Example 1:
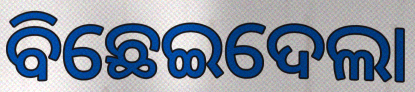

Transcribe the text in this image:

ବିଛେଇଦେଲା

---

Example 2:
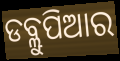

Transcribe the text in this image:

ଡବ୍ଲୁପିଆର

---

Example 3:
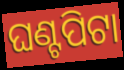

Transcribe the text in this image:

ଘଣ୍ଟପିଟା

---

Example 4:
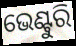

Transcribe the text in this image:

ଭେଣ୍ଟୁରି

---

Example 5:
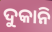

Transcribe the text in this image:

ଦୁକାନି